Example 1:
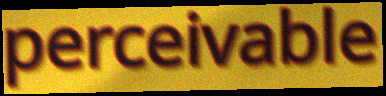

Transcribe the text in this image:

perceivable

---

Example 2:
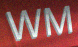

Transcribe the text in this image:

WM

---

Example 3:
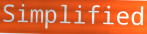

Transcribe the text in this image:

Simplified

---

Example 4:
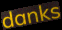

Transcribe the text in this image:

danks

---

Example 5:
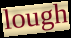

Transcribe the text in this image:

lough